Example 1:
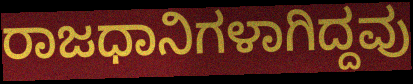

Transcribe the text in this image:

ರಾಜಧಾನಿಗಳಾಗಿದ್ದವು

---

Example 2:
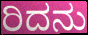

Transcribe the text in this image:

ರಿದನು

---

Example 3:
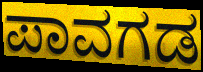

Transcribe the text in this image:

ಪಾವಗಡ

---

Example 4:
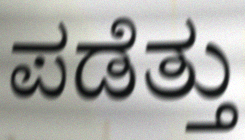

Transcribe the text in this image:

ಪಡೆತ್ತು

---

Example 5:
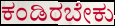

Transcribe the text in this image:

ಕಂಡಿರಬೇಕು